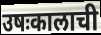
उषःकालाची